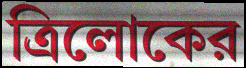
ত্রিলোকের